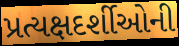
પ્રત્યક્ષદર્શીઓની